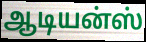
ஆடியன்ஸ்